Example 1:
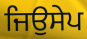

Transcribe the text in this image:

ਜਿਉਸੇਪ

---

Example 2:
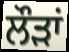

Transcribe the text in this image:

ਲੌੜਾਂ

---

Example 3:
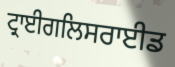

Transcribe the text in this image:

ਟ੍ਰਾਈਗਲਿਸਰਾਈਡ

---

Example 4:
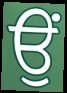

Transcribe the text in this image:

ਉਂ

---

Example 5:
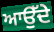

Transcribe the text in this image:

ਆਉੱਦੇ